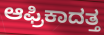
ಆಫ್ರಿಕಾದತ್ತ